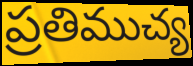
ప్రతిముచ్య